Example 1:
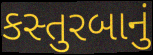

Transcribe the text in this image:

કસ્તુરબાનું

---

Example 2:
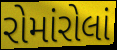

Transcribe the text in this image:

રોમાંરોલાં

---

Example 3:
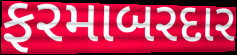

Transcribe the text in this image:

ફરમાબરદાર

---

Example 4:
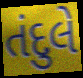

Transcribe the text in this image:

તંદુલે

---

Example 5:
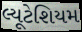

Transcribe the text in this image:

લ્યૂટેશિયમ